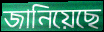
জানিয়েছে